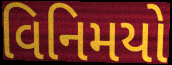
વિનિમયો